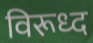
विरूध्द